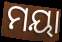
ମୟା